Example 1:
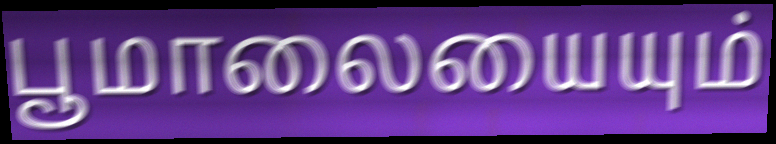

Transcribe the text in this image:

பூமாலையையும்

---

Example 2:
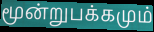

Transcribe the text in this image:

மூன்றுபக்கமும்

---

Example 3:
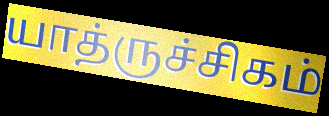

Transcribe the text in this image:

யாத்ருச்சிகம்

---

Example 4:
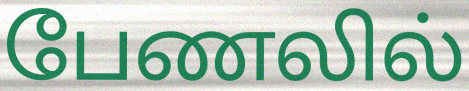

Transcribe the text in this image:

பேணலில்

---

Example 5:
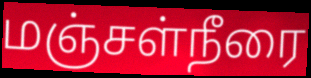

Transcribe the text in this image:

மஞ்சள்நீரை